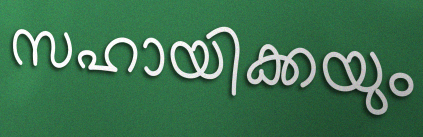
സഹായിക്കയും